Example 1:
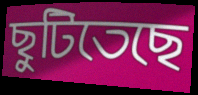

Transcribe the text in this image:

ছুটিতেছে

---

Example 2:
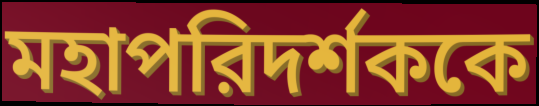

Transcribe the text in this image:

মহাপরিদর্শককে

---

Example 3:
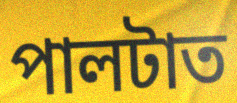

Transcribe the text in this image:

পালটাত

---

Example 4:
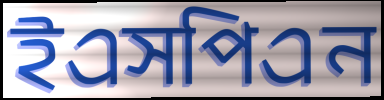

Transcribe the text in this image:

ইএসপিএন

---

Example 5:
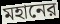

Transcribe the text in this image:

মহানের